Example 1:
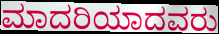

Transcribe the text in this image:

ಮಾದರಿಯಾದವರು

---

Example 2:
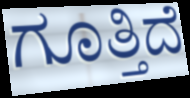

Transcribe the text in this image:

ಗೂತ್ತಿದೆ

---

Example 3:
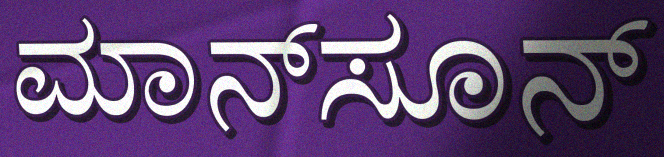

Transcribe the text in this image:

ಮಾನ್‌ಸೂನ್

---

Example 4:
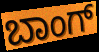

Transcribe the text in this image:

ಬಾಂಗ್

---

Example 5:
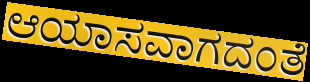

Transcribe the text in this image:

ಆಯಾಸವಾಗದಂತೆ